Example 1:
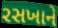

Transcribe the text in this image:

રસખાને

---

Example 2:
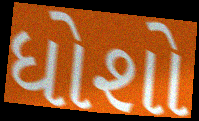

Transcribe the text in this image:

ધોશો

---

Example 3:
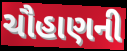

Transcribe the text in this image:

ચૌહાણની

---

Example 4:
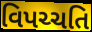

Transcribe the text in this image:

વિપચ્ચતિ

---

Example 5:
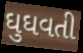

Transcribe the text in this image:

ઘુઘવતી